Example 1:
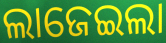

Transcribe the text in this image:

ଲାଜେଇଲା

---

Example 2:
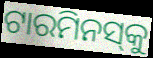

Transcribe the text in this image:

ଟାରମିନସ୍‌କୁ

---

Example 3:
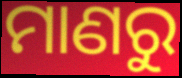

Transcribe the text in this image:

ମାଣରୁ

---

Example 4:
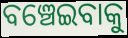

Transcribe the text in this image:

ବଞ୍ଚେଇବାକୁ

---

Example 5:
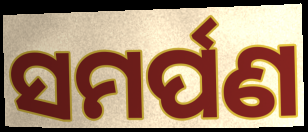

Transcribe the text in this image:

ସମର୍ପଣ